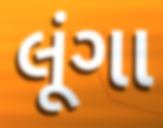
લૂંગા